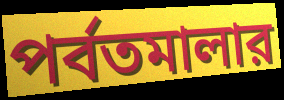
পর্বতমালার